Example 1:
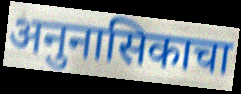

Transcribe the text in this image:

अनुनासिकाचा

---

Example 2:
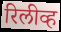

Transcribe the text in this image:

रिलीव्ह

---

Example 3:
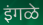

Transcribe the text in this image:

इंगळे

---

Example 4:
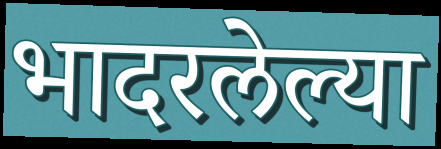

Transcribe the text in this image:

भादरलेल्या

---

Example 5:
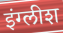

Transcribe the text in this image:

इंग्लीश